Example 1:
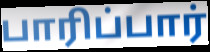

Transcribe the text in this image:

பாரிப்பார்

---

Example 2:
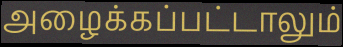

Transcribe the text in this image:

அழைக்கப்பட்டாலும்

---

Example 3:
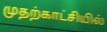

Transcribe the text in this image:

முதற்காட்சியில்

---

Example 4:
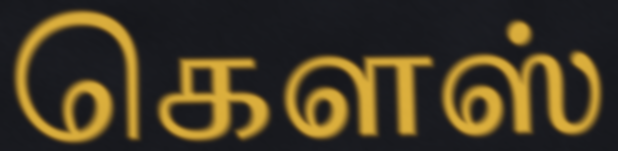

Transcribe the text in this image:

கௌஸ்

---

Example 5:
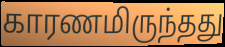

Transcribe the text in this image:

காரணமிருந்தது